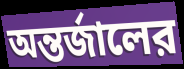
অন্তর্জালের